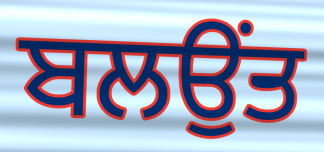
ਬਲਉਂਤ